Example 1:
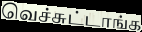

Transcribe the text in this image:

வெச்சுட்டாங்க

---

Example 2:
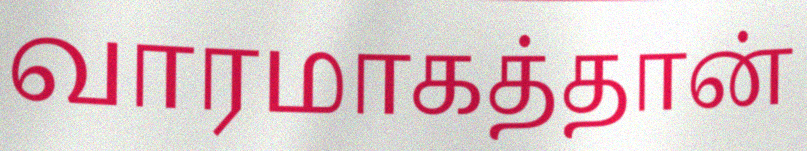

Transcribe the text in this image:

வாரமாகத்தான்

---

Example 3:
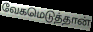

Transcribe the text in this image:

வேகமெடுத்தான்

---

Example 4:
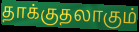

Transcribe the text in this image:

தாக்குதலாகும்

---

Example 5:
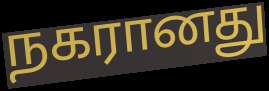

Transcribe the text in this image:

நகரானது